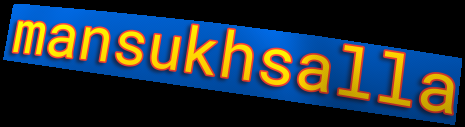
mansukhsalla